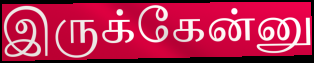
இருக்கேன்னு